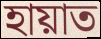
হায়াত